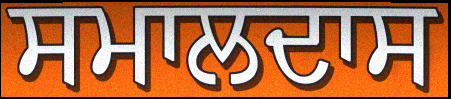
ਸਮਾਲਦਾਸ